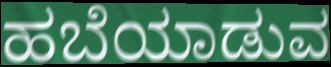
ಹಬೆಯಾಡುವ